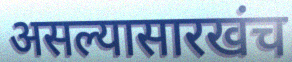
असल्यासारखंच